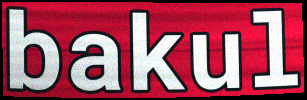
bakul